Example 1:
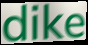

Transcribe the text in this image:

dike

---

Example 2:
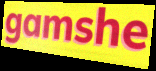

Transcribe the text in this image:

gamshe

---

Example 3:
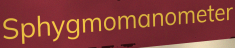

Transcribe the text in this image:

Sphygmomanometer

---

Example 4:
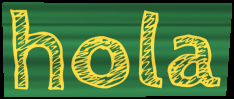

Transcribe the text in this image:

hola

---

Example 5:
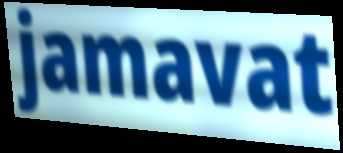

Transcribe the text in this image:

jamavat